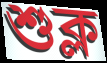
শুক্ল